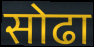
सोढा